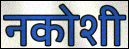
नकोशी